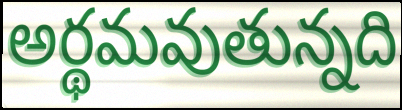
అర్థమవుతున్నది